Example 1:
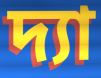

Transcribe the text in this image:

দ্যা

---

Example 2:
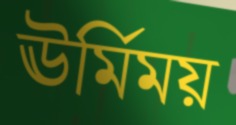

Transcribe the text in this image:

ঊর্মিময়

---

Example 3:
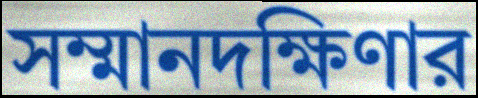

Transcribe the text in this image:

সম্মানদক্ষিণার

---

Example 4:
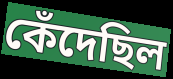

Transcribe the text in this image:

কেঁদেছিল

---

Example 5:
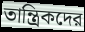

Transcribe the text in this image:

তান্ত্রিকদের